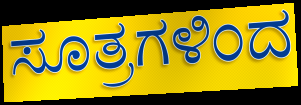
ಸೂತ್ರಗಳಿಂದ